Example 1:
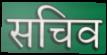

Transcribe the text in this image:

सचिव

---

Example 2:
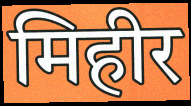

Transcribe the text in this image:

मिहीर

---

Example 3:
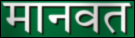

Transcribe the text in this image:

मानवत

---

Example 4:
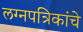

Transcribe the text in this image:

लग्नपत्रिकांचे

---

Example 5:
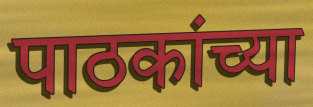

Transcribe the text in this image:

पाठकांच्या